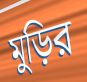
মুড়ির